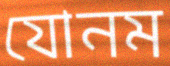
যোনম